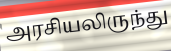
அரசியலிருந்து